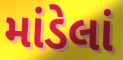
માંડેલાં